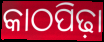
କାଠପିଢ଼ା